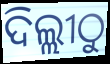
ଦିଲ୍ଲୀଠୁ